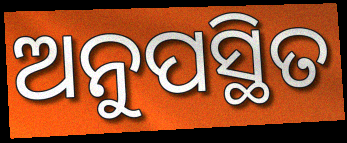
ଅନୁପସ୍ଥିତ